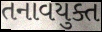
તનાવયુક્ત